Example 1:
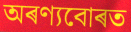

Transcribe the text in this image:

অৰণ্যবোৰত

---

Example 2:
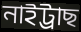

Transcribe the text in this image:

নাইট্ৰাছ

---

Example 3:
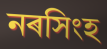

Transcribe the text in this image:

নৰসিংহ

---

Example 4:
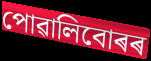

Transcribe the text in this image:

পোৱালিবোৰৰ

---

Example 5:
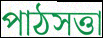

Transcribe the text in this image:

পাঠসত্তা